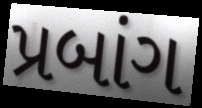
પ્રબાંગ